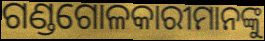
ଗଣ୍ଡଗୋଳକାରୀମାନଙ୍କୁ